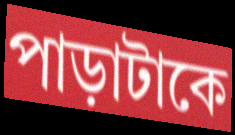
পাড়াটাকে